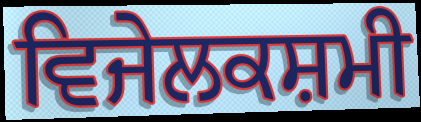
ਵਿਜੇਲਕਸ਼ਮੀ